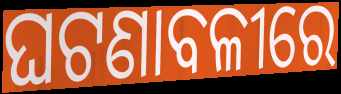
ଘଟଣାବଳୀରେ